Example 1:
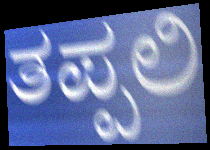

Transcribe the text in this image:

ತಪ್ಪಲಿ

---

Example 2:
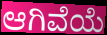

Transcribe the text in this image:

ಆಗಿವೆಯೆ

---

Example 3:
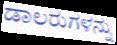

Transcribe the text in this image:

ಡಾಲರುಗಳನ್ನು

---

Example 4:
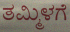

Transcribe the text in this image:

ತಮ್ಮಿಳಗೆ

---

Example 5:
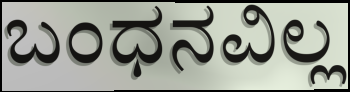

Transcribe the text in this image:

ಬಂಧನವಿಲ್ಲ